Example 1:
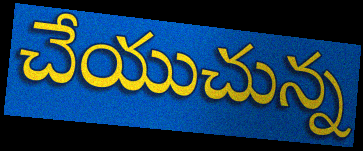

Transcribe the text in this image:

చేయుచున్న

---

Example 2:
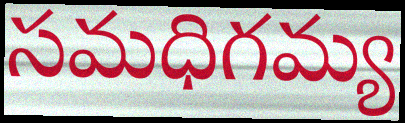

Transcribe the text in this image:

సమధిగమ్య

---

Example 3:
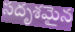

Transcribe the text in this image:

సదృశమైన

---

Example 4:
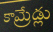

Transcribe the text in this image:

కామ్రేడ్లు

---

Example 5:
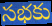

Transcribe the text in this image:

సభకు